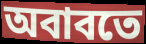
অবাবতে